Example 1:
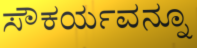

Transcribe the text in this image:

ಸೌಕರ್ಯವನ್ನೂ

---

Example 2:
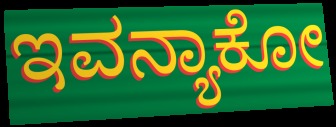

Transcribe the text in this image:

ಇವನ್ಯಾಕೋ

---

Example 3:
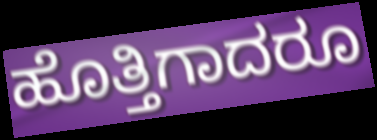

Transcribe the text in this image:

ಹೊತ್ತಿಗಾದರೂ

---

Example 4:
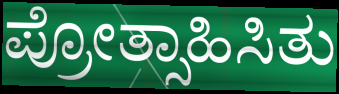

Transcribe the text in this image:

ಪ್ರೋತ್ಸಾಹಿಸಿತು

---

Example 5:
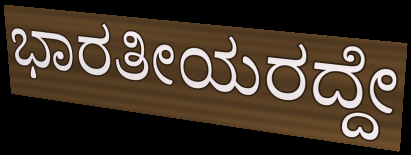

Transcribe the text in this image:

ಭಾರತೀಯರದ್ದೇ